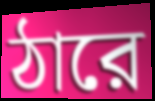
ঠারে